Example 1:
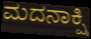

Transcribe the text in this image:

ಮದನಾಕ್ಷಿ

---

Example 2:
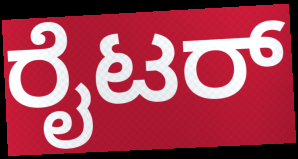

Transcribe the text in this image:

ರೈಟರ್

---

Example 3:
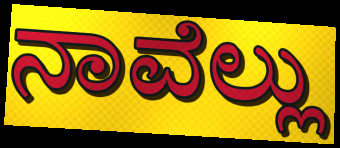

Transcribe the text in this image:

ನಾವೆಲ್ಲು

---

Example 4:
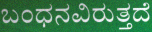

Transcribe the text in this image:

ಬಂಧನವಿರುತ್ತದೆ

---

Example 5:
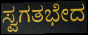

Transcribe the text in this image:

ಸ್ವಗತಭೇದ